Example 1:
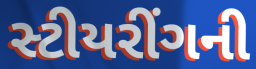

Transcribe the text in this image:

સ્ટીયરીંગની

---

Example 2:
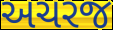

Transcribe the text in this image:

અચરજ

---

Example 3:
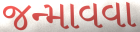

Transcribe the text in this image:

જન્માવવા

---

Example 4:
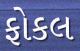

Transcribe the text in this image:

ફોકલ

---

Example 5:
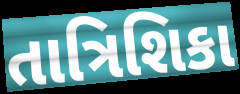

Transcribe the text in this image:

તાત્રિશિકા